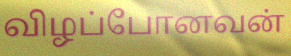
விழப்போனவன்